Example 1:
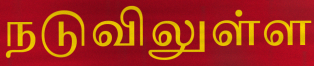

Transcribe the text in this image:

நடுவிலுள்ள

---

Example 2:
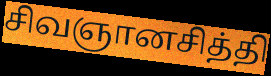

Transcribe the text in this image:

சிவஞானசித்தி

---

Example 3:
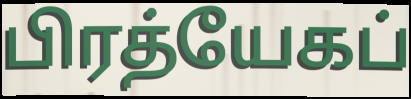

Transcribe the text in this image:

பிரத்யேகப்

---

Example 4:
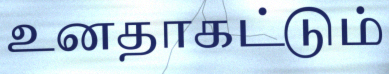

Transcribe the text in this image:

உனதாகட்டும்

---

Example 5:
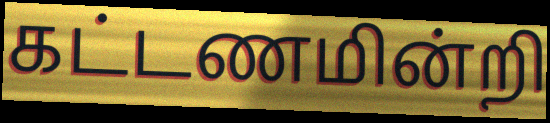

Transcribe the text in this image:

கட்டணமின்றி